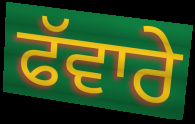
ਫੱਵਾਰੇ